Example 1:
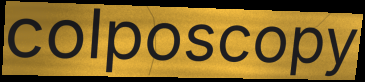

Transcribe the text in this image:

colposcopy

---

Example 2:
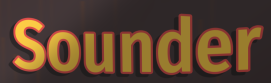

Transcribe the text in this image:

Sounder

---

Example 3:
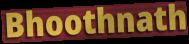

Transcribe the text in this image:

Bhoothnath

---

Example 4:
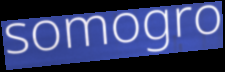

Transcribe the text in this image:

somogro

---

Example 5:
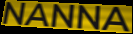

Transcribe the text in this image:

NANNA